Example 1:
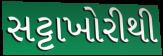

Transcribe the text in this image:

સટ્ટાખોરીથી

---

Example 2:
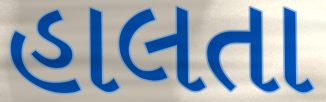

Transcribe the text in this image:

હાલતા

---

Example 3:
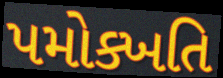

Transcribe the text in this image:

પમોક્ખતિ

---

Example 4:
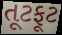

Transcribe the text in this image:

તૂટફૂટ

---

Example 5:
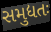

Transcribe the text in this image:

સમુદ્યતઃ